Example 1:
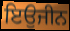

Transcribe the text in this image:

ਇਉਜੀਨ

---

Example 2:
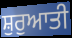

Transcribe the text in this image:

ਸ਼ੁਰੁਆਤੀ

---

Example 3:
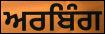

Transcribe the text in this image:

ਅਰਬਿੰਗ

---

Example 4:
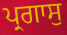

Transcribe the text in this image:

ਪ੍ਰਗਾਸੁ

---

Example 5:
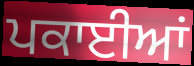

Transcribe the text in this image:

ਪਕਾਈਆਂ